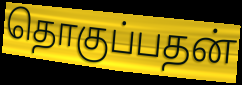
தொகுப்பதன்